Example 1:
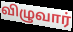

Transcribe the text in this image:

விழுவார்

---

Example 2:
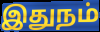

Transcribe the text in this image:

இதுநம்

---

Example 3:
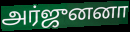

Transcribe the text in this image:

அர்ஜுனனா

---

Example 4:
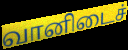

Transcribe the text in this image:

வானிடைச்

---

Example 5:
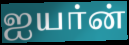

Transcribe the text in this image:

ஐயர்ன்